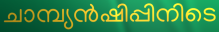
ചാമ്പ്യൻഷിപ്പിനിടെ